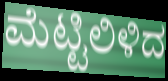
ಮೆಟ್ಟಿಲಿಳಿದ